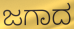
ಜಗಾದ